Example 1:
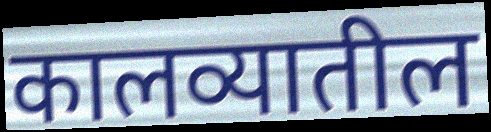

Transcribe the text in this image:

कालव्यातील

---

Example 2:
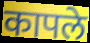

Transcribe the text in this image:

कापले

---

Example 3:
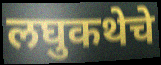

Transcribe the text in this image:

लघुकथेचे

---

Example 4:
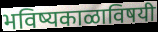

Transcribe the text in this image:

भविष्यकाळाविषयी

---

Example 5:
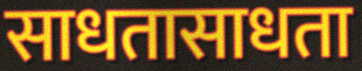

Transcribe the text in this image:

साधतासाधता